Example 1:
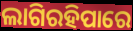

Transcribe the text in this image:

ଲାଗିରହିପାରେ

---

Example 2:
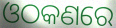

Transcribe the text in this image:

ଓଠକଣରେ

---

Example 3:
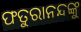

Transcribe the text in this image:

ଫତୁରାନନ୍ଦଙ୍କୁ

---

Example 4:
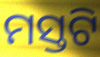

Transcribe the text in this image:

ମସ୍ତଟି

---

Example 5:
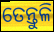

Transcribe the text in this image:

ତେନ୍ତୁଳି